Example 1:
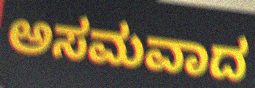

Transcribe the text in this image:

ಅಸಮವಾದ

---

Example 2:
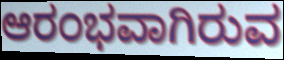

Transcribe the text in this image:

ಆರಂಭವಾಗಿರುವ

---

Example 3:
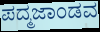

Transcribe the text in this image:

ಪದ್ಮಜಾಂಡವ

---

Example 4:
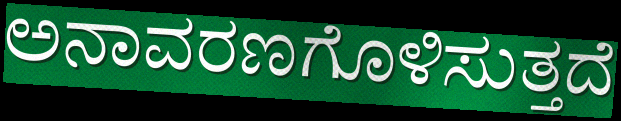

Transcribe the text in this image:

ಅನಾವರಣಗೊಳಿಸುತ್ತದೆ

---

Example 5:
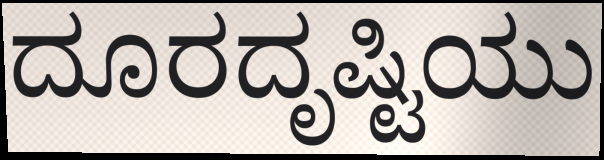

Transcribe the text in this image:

ದೂರದೃಷ್ಟಿಯು